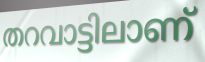
തറവാട്ടിലാണ്